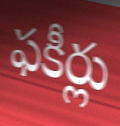
ఫకీర్లు